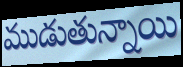
ముడుతున్నాయి